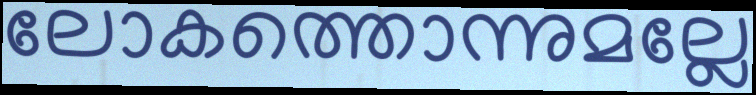
ലോകത്തൊന്നുമല്ലേ